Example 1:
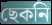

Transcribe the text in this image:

ছেকনি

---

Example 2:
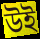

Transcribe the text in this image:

উই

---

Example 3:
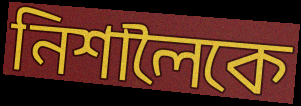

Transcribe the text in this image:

নিশালৈকে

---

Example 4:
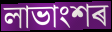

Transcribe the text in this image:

লাভাংশৰ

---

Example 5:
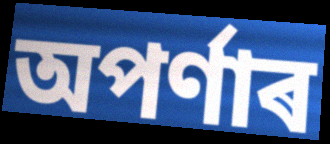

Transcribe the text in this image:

অপৰ্ণাৰ